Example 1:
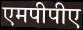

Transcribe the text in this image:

एमपीपीए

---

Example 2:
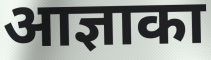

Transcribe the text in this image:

आज्ञाका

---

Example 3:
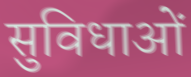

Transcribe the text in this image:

सुविधाओें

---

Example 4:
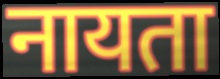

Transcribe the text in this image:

नायता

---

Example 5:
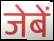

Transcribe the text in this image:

जेबें